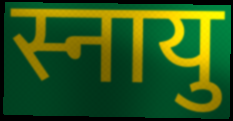
स्नायु